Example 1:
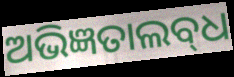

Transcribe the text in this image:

ଅଭିଜ୍ଞତାଲବ୍‌ଧ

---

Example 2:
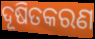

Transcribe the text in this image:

ଦୂଷିତକରଣ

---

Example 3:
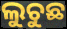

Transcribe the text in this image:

ଲୁଚୁଛ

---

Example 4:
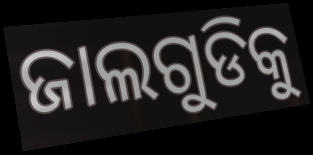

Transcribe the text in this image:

ଜାଲଗୁଡିକୁ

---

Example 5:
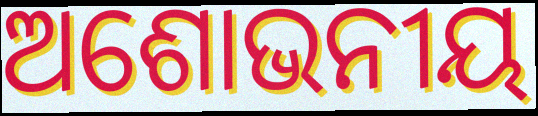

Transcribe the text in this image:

ଅଶୋଭନୀୟ